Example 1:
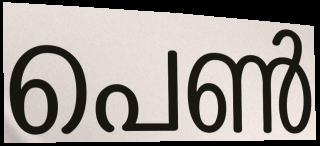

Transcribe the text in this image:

പെൺ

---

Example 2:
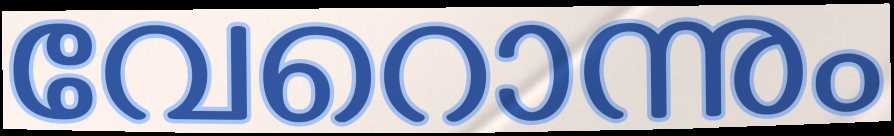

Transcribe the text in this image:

വേറൊന്നും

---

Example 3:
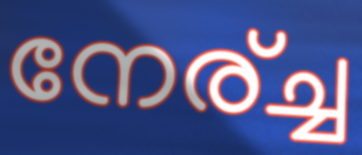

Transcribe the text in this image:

നേര്ച്ച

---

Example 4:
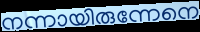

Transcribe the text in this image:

നന്നായിരുന്നേനെ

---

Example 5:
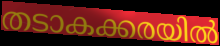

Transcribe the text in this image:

തടാകക്കരയിൽ